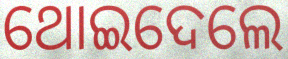
ଥୋଇଦେଲେ